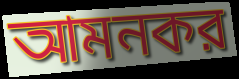
আমনকর